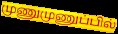
முணுமுணுப்பில்